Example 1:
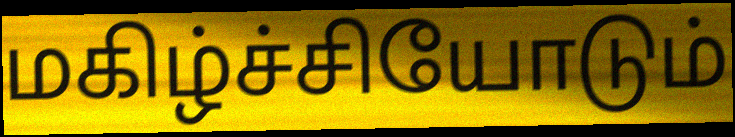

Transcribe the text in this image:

மகிழ்ச்சியோடும்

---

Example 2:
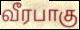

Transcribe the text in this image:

வீரபாகு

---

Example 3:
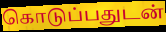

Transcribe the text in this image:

கொடுப்பதுடன்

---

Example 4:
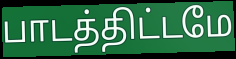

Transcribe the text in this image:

பாடத்திட்டமே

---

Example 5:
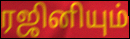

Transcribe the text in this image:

ரஜினியும்